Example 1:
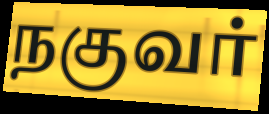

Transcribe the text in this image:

நகுவர்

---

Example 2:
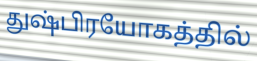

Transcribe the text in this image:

துஷ்பிரயோகத்தில்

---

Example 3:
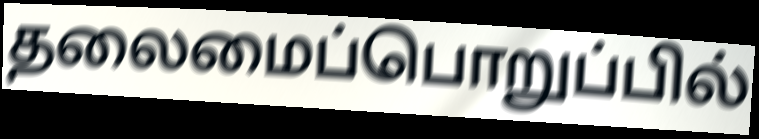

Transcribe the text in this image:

தலைமைப்பொறுப்பில்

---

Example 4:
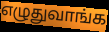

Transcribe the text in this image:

எழுதுவாங்க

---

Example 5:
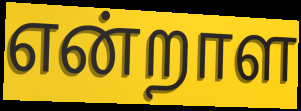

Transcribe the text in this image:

என்றாள